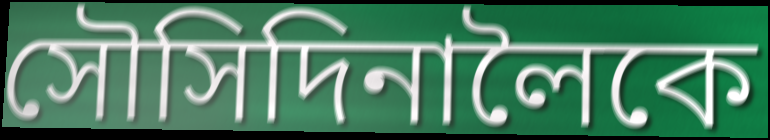
সৌসিদিনালৈকে